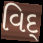
વિદ્